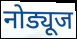
नोड्यूज